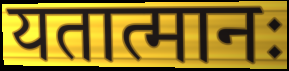
यतात्मानः